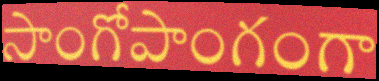
సాంగోపాంగంగా